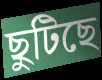
ছুটিছে